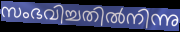
സംഭവിച്ചതിൽനിന്നു